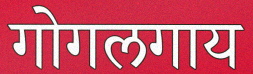
गोगलगाय